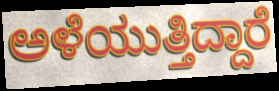
ಅಳೆಯುತ್ತಿದ್ದಾರೆ